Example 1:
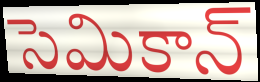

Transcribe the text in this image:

సెమికాన్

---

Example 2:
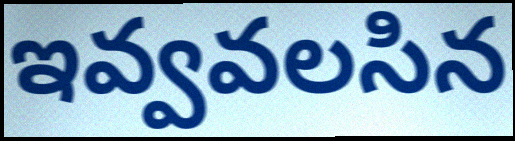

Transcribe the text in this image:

ఇవ్వవలసిన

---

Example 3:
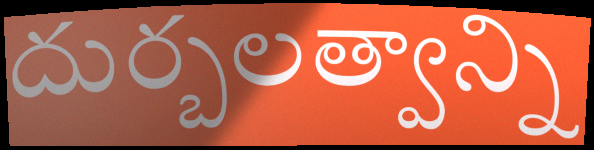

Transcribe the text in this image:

దుర్బలత్వాన్ని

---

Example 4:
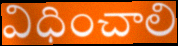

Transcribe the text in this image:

విధించాలి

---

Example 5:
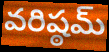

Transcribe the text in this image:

వరిష్ఠమ్